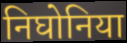
निघोनिया